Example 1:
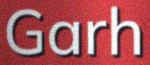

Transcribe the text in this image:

Garh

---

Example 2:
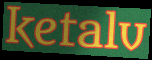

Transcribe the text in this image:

ketalu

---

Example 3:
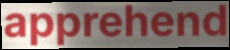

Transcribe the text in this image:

apprehend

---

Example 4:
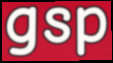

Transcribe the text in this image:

gsp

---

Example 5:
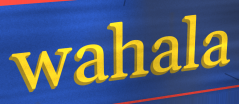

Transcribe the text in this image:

wahala